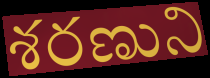
శరణుని